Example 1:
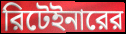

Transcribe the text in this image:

রিটেইনারের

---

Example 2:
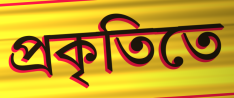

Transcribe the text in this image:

প্রকৃতিতে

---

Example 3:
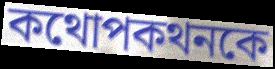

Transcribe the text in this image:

কথোপকথনকে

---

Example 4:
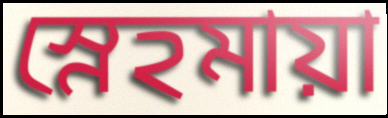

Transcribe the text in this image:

স্নেহমায়া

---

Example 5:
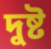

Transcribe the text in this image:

দুষ্ট